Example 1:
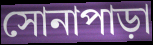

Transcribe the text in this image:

সোনাপাড়া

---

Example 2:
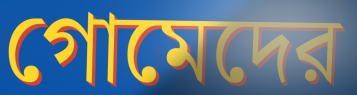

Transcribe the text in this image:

গোমেদের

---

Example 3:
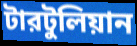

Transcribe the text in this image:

টারটুলিয়ান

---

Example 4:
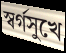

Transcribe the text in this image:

স্বর্গসুখে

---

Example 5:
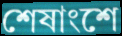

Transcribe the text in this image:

শেষাংশে